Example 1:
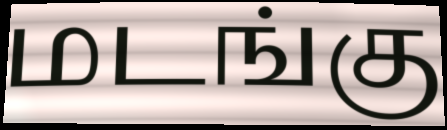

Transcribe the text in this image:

மடங்கு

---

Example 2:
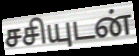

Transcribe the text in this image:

சசியுடன்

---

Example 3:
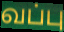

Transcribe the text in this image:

வப்பு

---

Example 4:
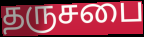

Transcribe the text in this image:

தருசபை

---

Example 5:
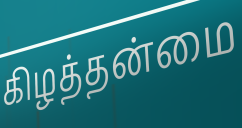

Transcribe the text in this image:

கிழத்தன்மை